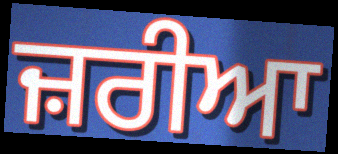
ਜ਼ਰੀਆ